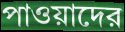
পাওয়াদের